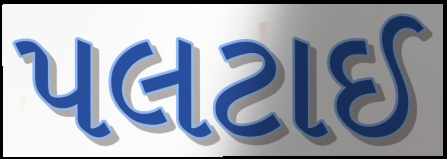
પલટાઈ